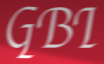
GBI